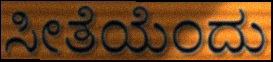
ಸೀತೆಯೆಂದು